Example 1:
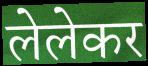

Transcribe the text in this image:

लेलेकर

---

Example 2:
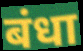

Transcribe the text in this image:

बंधा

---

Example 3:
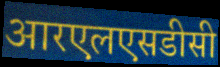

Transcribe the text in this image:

आरएलएसडीसी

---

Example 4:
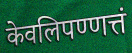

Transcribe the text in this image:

केवलिपण्णत्तं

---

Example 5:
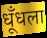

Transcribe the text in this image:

धूँधला